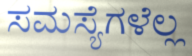
ಸಮಸ್ಯೆಗಳೆಲ್ಲ